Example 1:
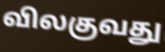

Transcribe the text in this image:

விலகுவது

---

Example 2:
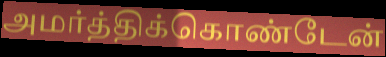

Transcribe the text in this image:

அமர்த்திக்கொண்டேன்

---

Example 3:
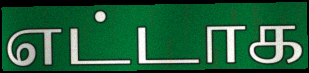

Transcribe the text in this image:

எட்டாக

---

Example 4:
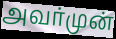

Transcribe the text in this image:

அவர்முன்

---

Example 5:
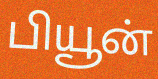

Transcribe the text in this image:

பியூன்